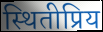
स्थितीप्रिय